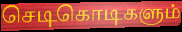
செடிகொடிகளும்